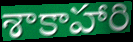
శాకాహారి